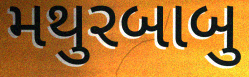
મથુરબાબુ